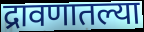
द्रावणातल्या